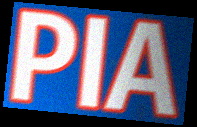
PIA